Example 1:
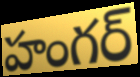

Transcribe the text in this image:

హంగర్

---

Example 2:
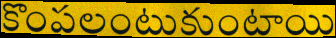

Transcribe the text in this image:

కొంపలంటుకుంటాయి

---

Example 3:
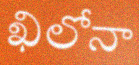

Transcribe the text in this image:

ఖిలోనా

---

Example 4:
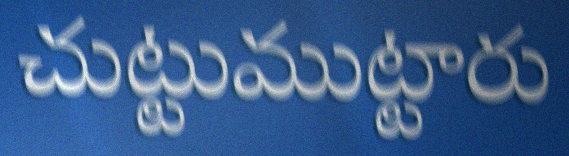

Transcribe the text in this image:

చుట్టుముట్టారు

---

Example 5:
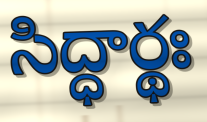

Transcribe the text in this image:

సిద్ధార్థః